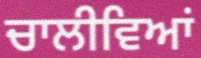
ਚਾਲੀਵਿਆਂ